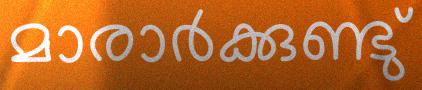
മാരാർക്കുണ്ടു്